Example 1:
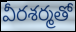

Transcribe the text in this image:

వీరశర్మతో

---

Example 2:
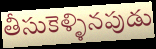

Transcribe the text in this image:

తీసుకెళ్ళినపుడు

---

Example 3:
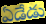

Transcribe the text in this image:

ఏడేడు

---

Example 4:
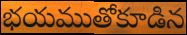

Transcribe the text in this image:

భయముతోకూడిన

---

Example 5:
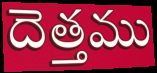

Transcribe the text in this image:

దెత్తము